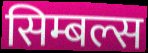
सिम्बल्स